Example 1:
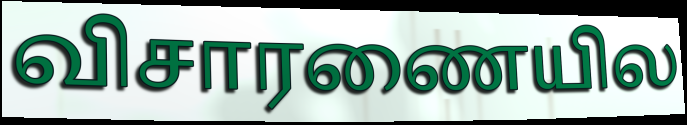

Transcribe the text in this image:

விசாரணையில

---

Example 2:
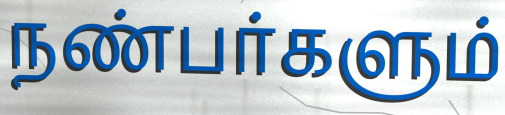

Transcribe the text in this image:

நண்பர்களும்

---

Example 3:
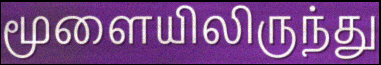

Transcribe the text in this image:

மூளையிலிருந்து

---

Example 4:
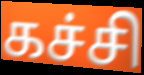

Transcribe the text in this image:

கச்சி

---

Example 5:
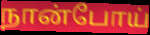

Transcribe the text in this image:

நான்போய்